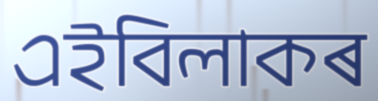
এইবিলাকৰ